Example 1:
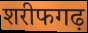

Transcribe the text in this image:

शरीफगढ़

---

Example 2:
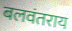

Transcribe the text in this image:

बलवंतराय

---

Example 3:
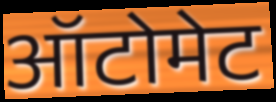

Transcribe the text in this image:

ऑटोमेट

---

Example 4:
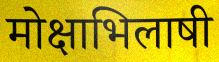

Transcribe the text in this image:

मोक्षाभिलाषी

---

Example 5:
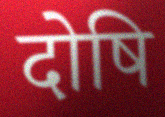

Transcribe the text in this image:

दोषि